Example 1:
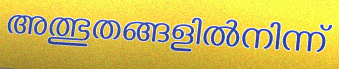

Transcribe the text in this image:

അത്ഭുതങ്ങളിൽനിന്ന്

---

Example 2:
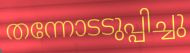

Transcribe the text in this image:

തന്നോടടുപ്പിച്ചു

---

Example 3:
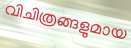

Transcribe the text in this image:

വിചിത്രങ്ങളുമായ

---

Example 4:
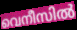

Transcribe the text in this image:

വെനീസിൽ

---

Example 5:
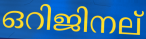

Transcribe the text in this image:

ഒറിജിനല്